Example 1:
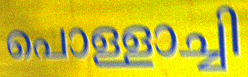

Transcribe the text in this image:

പൊള്ളാച്ചി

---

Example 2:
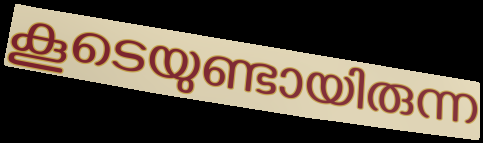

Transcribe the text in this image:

കൂടെയുണ്ടായിരുന്ന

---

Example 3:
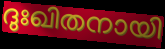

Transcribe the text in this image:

ദുഃഖിതനായി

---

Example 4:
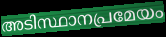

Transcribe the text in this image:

അടിസ്ഥാനപ്രമേയം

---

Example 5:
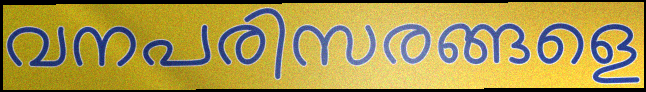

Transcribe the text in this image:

വനപരിസരങ്ങളെ